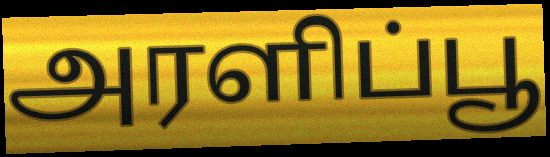
அரளிப்பூ